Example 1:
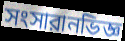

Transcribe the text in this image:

সংসারানভিজ্ঞ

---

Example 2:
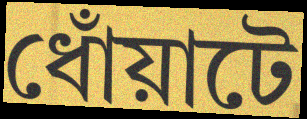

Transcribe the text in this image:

ধোঁয়াটে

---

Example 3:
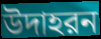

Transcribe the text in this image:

উদাহরন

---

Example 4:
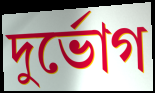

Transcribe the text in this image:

দুর্ভোগ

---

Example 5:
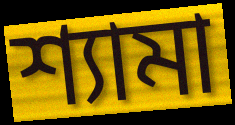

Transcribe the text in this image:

শ্যামা